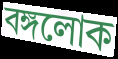
বঙ্গলোক